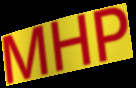
MHP